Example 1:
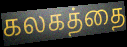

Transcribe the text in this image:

கலகத்தை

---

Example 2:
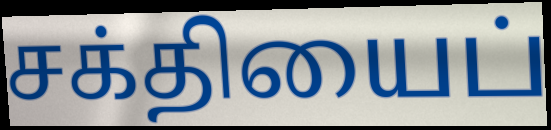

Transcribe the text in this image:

சக்தியைப்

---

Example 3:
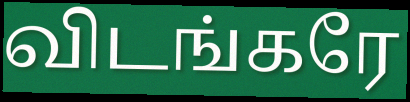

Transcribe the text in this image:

விடங்கரே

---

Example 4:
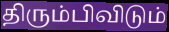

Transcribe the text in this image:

திரும்பிவிடும்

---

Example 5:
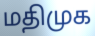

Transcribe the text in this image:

மதிமுக